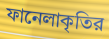
ফানেলাকৃতির